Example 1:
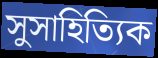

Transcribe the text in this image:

সুসাহিত্যিক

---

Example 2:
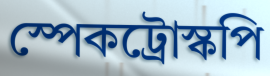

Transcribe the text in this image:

স্পেকট্রোস্কপি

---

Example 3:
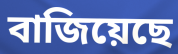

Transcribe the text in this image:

বাজিয়েছে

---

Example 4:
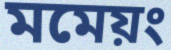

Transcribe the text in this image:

মমেয়ং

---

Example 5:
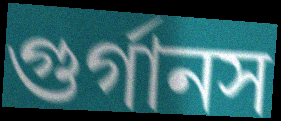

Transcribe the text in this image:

গুর্গানস